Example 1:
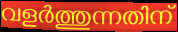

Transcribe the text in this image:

വളർത്തുന്നതിന്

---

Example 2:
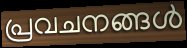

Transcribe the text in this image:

പ്രവചനങ്ങൾ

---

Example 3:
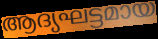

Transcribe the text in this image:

ആദ്യഘട്ടമായ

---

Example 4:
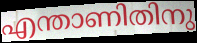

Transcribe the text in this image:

എന്താണിതിനു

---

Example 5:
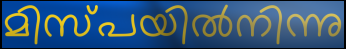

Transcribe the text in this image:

മിസ്പയിൽനിന്നു